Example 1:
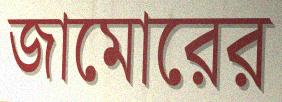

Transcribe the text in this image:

জামোরের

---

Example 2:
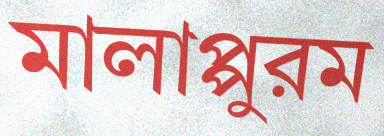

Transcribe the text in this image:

মালাপ্পুরম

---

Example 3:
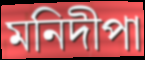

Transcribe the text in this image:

মনিদীপা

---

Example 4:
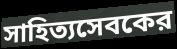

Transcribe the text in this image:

সাহিত্যসেবকের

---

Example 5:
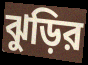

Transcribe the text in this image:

ঝুড়ির